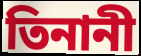
তিনানী